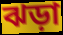
ঝড়া